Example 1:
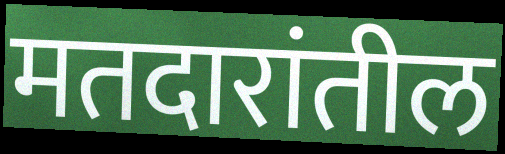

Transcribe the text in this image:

मतदारांतील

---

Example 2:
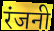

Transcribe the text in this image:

रंजनी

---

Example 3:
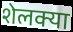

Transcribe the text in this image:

शेलक्या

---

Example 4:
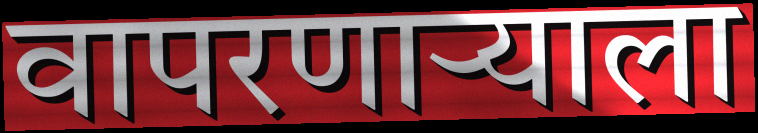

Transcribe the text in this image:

वापरणार्‍याला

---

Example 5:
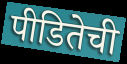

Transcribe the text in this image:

पीडितेची